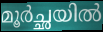
മൂർച്ഛയിൽ